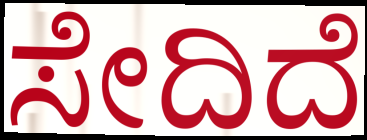
ಸೇದಿದೆ